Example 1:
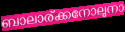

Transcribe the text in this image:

ബാലാര്ക്കനോലുനാ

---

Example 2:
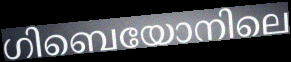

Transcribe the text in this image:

ഗിബെയോനിലെ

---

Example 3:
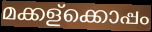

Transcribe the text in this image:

മക്കള്ക്കൊപ്പം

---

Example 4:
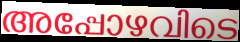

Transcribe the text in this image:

അപ്പോഴവിടെ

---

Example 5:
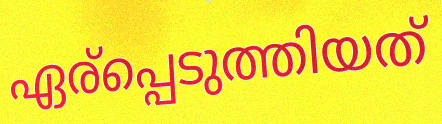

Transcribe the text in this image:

ഏര്പ്പെടുത്തിയത്